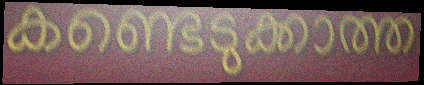
കണ്ടെടുക്കാത്ത